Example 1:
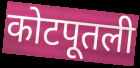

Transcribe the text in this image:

कोटपूतली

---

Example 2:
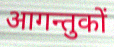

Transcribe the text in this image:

आगन्तुकों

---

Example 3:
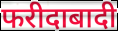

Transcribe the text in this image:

फरीदाबादी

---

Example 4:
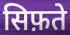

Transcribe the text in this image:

सिफ़ते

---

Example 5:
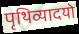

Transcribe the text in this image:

पृथिव्यादयो